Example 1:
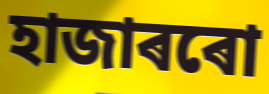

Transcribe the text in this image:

হাজাৰৰো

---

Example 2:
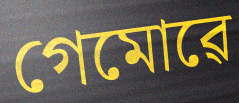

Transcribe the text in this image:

গেমোৱে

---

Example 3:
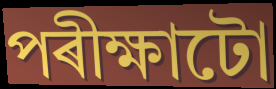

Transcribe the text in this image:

পৰীক্ষাটো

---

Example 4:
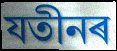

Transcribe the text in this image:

যতীনৰ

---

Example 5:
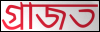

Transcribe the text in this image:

গ্ৰাজত